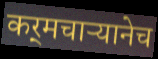
कर्मचाऱ्यानेच